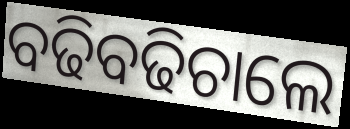
ବଢିବଢିଚାଲେ